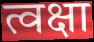
त्वक्षा